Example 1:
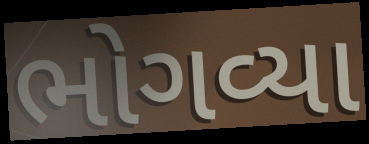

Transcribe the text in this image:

ભોગવ્યા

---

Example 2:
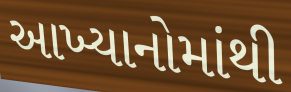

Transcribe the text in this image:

આખ્યાનોમાંથી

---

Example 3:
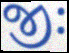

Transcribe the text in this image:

જીઃ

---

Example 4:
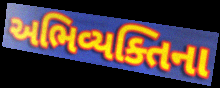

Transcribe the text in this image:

અભિવ્યક્તિના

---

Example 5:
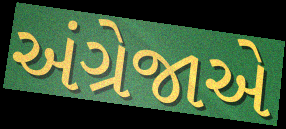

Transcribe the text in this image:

અંગ્રેજાએ